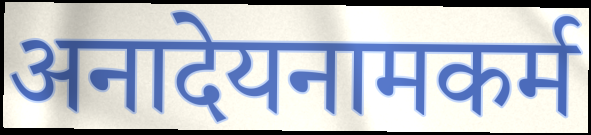
अनादेयनामकर्म